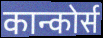
कान्कोर्स